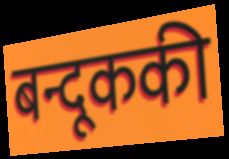
बन्दूककी